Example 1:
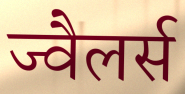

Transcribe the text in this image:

ज्वैलर्स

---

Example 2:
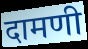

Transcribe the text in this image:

दामणी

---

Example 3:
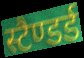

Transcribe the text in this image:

स्टैण्डर्ड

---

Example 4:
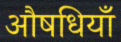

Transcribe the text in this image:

औषधियाँ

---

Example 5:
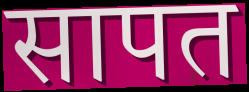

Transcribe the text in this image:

सापत